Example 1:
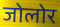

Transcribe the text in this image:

जोलोर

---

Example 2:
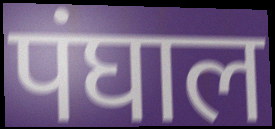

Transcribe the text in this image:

पंघाल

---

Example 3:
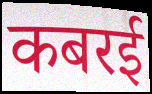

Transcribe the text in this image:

कबरई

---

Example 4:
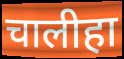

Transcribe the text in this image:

चालीहा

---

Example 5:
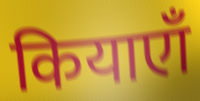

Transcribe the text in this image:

कियाएाँ